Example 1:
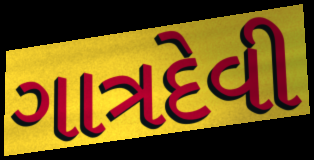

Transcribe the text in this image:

ગાત્રદેવી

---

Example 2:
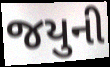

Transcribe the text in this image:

જયુની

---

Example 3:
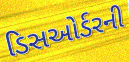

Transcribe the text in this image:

ડિસઓર્ડરની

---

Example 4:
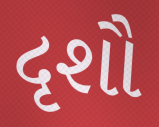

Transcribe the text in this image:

દૃશૌ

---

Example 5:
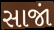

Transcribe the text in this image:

સાજાં